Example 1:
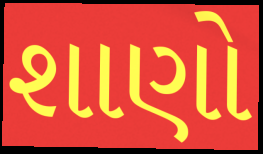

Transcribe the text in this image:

શાણો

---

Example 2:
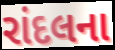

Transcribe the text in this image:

રાંદલના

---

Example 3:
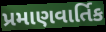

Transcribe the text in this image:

પ્રમાણવાર્તિક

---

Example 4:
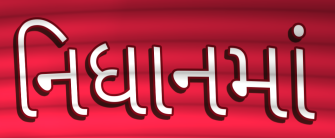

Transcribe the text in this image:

નિધાનમાં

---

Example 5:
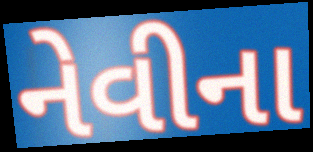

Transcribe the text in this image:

નેવીના